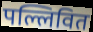
पल्लिवित